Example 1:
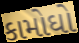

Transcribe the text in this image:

કામોઘો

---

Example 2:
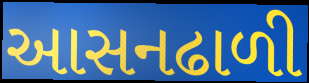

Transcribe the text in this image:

આસનઢાળી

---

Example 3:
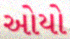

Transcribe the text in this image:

ઓયો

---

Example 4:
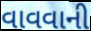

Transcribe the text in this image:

વાવવાની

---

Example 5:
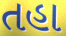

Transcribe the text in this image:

તહા